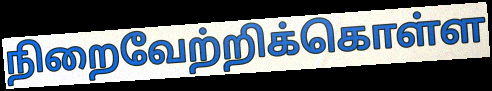
நிறைவேற்றிக்கொள்ள